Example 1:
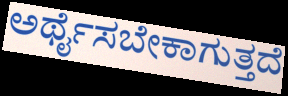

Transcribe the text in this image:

ಅರ್ಥೈಸಬೇಕಾಗುತ್ತದೆ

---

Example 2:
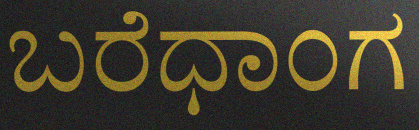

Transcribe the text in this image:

ಬರೆಧಾಂಗ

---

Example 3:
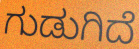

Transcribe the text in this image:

ಗುಡುಗಿದೆ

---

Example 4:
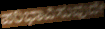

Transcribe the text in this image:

ಪರಿಭಾವಿಸುವುದೇ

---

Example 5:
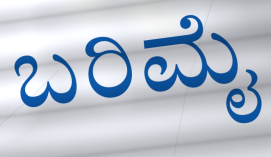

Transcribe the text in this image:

ಬರಿಮೈ